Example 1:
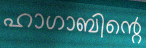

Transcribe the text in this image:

ഹാഗാബിന്റെ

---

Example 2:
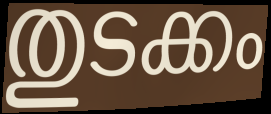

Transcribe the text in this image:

തുടക്കം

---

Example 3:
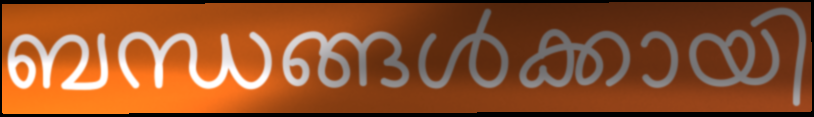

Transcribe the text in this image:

ബന്ധങ്ങൾക്കായി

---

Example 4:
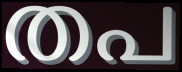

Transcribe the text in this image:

തപ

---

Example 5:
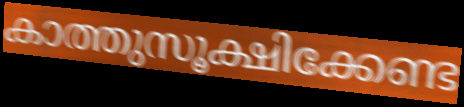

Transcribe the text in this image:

കാത്തുസൂക്ഷിക്കേണ്ട